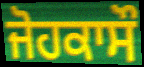
ਜੋਹਕਾਸੌ